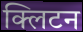
क्लिटन